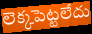
లెక్కపెట్టలేదు